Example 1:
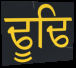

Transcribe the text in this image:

ਢੂਢਿ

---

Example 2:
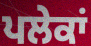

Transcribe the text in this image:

ਪਲੇਕਾਂ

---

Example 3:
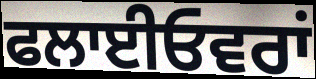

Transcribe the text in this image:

ਫਲਾਈਓਵਰਾਂ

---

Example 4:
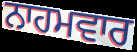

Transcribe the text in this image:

ਨਾਹਮਵਾਰ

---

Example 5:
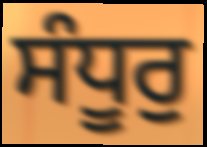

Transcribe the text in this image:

ਸੰਧੂਰੁ